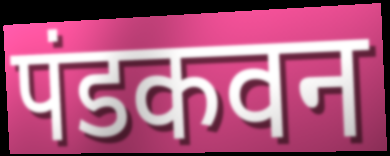
पंडकवन